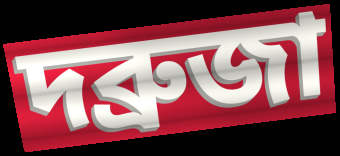
দব্রুজা